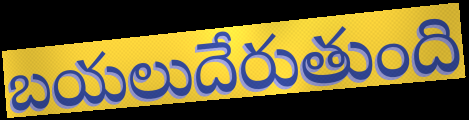
బయలుదేరుతుంది